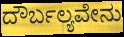
ದೌರ್ಬಲ್ಯವೇನು